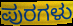
ಪುರಗಳು